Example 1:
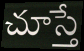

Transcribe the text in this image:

చూస్తే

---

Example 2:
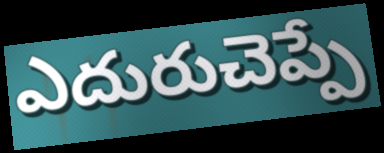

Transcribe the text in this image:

ఎదురుచెప్పే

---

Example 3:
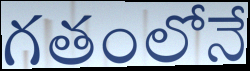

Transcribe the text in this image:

గతంలోనే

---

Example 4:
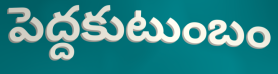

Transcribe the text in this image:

పెద్దకుటుంబం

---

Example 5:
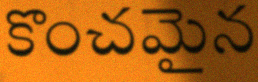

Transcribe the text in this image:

కొంచమైన